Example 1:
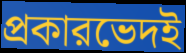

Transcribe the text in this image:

প্রকারভেদই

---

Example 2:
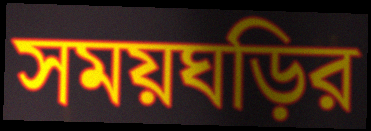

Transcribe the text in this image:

সময়ঘড়ির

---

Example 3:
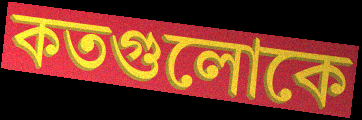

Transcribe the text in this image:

কতগুলোকে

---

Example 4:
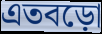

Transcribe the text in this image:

এতবড়ো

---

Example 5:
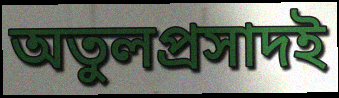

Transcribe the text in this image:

অতুলপ্রসাদই